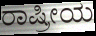
ರಾಷ್ರೀಯ